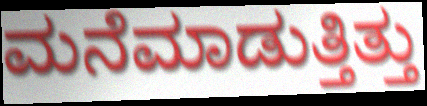
ಮನೆಮಾಡುತ್ತಿತ್ತು